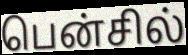
பென்சில்